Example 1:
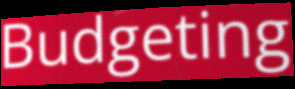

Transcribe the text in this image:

Budgeting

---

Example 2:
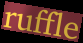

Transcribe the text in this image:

ruffle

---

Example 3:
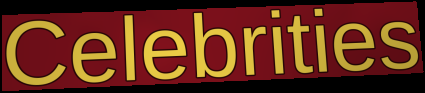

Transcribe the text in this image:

Celebrities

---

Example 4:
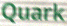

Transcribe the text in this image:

Quark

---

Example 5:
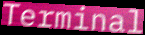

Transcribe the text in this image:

Terminal